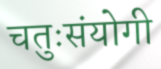
चतुःसंयोगी